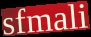
sfmali